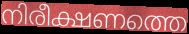
നിരീക്ഷണത്തെ